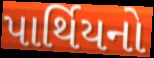
પાર્થિયનો